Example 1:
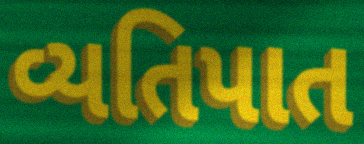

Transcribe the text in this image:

વ્યતિપાત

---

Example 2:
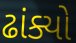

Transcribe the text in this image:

ઢાંક્યો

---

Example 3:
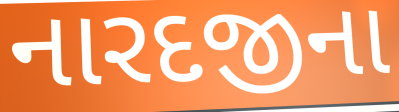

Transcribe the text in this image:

નારદજીના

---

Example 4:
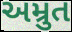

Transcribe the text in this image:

અમ્રુત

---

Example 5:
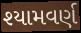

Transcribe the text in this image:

શ્યામવર્ણ